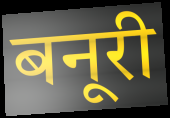
बनूरी